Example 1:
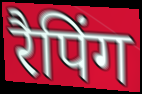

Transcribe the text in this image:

रैपिंग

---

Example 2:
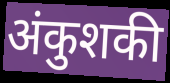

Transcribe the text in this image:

अंकुशकी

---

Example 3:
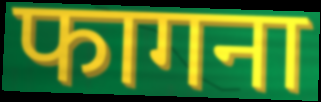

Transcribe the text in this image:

फागना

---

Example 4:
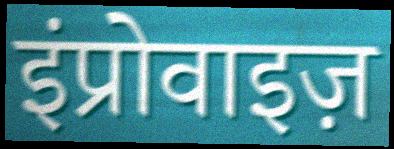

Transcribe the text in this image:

इंप्रोवाइज़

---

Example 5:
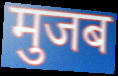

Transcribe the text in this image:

मुजब